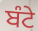
ਬੰਟੇ